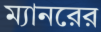
ম্যানরের